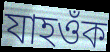
যাহওঁক